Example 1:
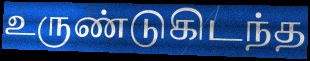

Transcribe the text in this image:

உருண்டுகிடந்த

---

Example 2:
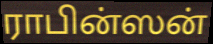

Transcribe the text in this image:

ராபின்ஸன்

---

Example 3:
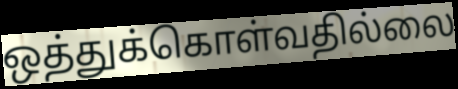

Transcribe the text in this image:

ஒத்துக்கொள்வதில்லை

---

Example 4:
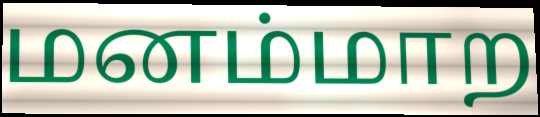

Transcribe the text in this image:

மனம்மாற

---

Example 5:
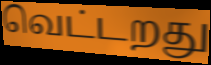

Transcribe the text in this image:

வெட்டறது